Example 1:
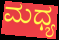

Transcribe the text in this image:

ಮಧ್ಯ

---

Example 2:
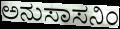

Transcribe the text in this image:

ಅನುಸಾಸನಿಂ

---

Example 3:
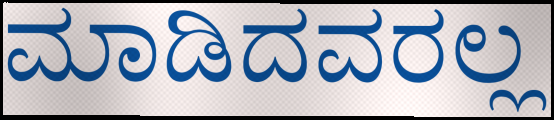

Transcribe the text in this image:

ಮಾಡಿದವರಲ್ಲ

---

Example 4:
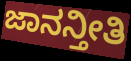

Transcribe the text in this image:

ಜಾನನ್ತೀತಿ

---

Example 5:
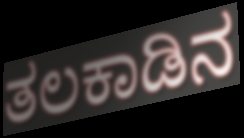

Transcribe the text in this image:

ತಲಕಾಡಿನ